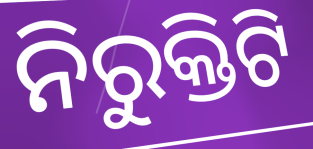
ନିରୁକ୍ତିଟି